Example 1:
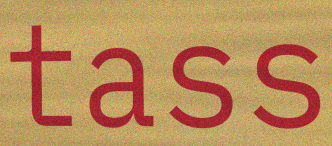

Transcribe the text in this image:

tass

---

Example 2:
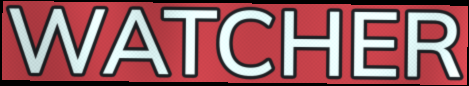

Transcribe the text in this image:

WATCHER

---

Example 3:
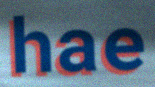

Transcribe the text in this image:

hae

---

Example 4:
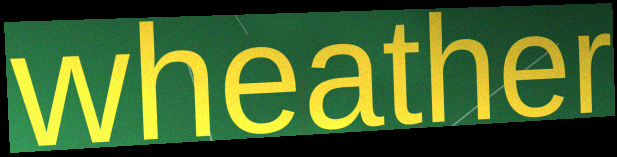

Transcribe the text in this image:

wheather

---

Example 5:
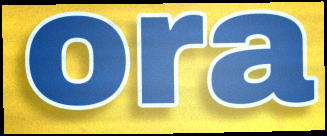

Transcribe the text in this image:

ora